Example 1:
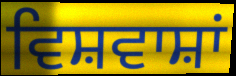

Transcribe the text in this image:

ਵਿਸ਼ਵਾਸ਼ਾਂ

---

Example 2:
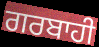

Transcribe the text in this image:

ਗਰਬਾਹੀ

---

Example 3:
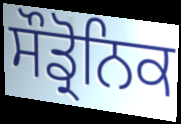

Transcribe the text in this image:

ਸੌਡ੍ਰੋਨਿਕ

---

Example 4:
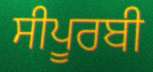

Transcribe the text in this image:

ਸੀਪੂਰਬੀ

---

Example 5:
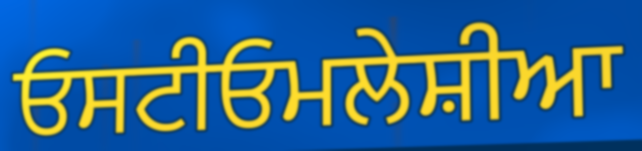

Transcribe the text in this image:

ਓਸਟੀਓਮਲੇਸ਼ੀਆ